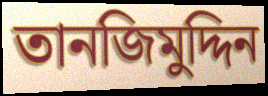
তানজিমুদ্দিন